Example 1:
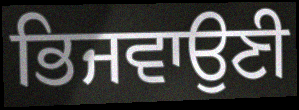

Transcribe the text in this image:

ਭਿਜਵਾਉਣੀ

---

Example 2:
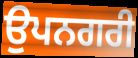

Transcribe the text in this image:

ਉਪਨਗਰੀ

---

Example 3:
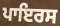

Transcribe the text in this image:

ਪਾਇਰਸ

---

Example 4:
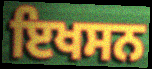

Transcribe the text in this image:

ਇਖਸਨ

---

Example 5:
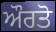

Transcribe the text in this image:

ਔਰਤੋ